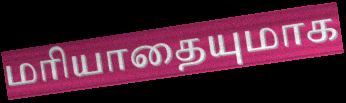
மரியாதையுமாக